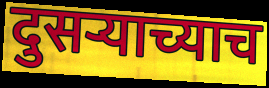
दुसऱ्याच्याच